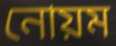
নোয়ম